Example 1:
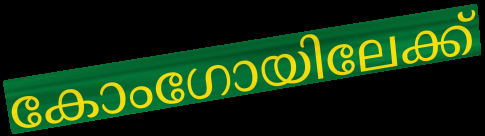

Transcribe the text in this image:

കോംഗോയിലേക്ക്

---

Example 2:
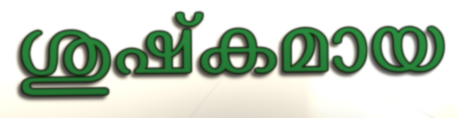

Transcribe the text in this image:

ശുഷ്‌കമായ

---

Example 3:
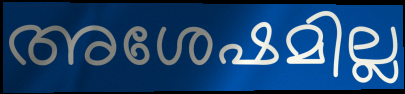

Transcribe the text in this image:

അശേഷമില്ല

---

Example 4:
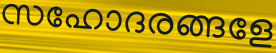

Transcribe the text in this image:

സഹോദരങ്ങളേ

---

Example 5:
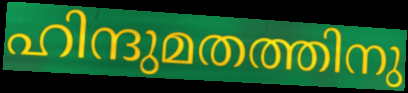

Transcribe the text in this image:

ഹിന്ദുമതത്തിനു